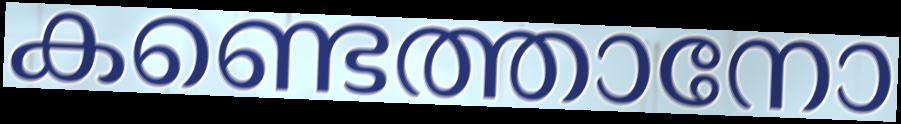
കണ്ടെത്താനോ